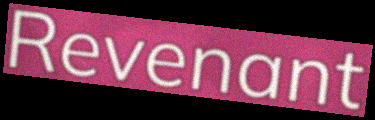
Revenant